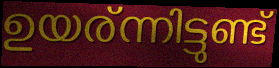
ഉയര്ന്നിട്ടുണ്ട്